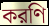
করণি